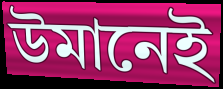
উমানেই